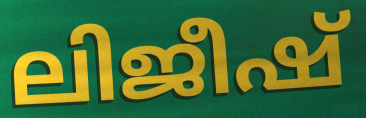
ലിജീഷ്